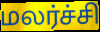
மலர்ச்சி